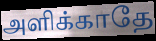
அளிக்காதே